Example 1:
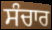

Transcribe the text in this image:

ਸੰਚਾਰ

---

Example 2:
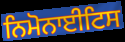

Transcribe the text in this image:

ਨਿਮੋਨਾਈਟਿਸ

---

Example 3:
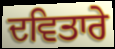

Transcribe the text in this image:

ਦਵਿਤਾਰੇ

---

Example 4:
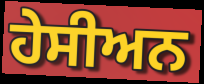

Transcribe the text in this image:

ਹੇਸੀਅਨ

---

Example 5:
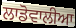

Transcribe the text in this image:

ਲਾਡੋਵਾਲੀਆ